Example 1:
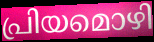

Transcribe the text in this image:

പ്രിയമൊഴി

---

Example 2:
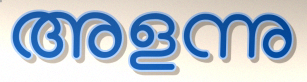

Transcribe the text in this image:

അളന്നു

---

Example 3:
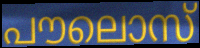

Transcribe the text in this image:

പൗലൊസ്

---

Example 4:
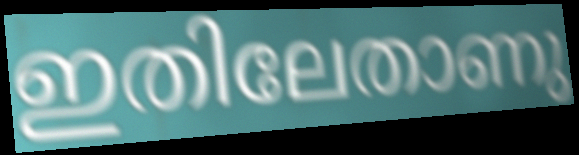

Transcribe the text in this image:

ഇതിലേതാണു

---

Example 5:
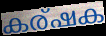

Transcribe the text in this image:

കര്ഷക